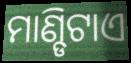
ମାଣ୍ଡିଟାଏ